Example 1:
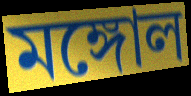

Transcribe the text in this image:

মঙ্গোল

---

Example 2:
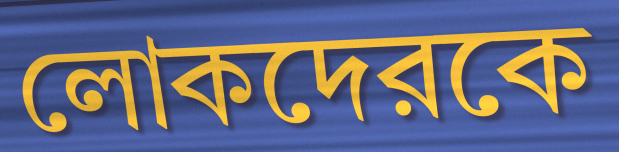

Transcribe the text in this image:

লোকদেরকে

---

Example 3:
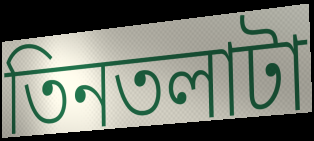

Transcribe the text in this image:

তিনতলাটা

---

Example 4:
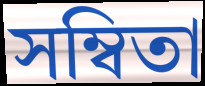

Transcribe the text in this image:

সম্বিতা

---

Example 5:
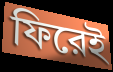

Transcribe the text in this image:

ফিরেই